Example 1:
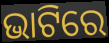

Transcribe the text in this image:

ଭାଟିରେ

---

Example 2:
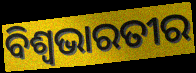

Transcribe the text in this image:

ବିଶ୍ୱଭାରତୀର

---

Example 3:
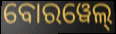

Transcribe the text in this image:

ବୋରୱେଲ୍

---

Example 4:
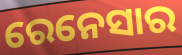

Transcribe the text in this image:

ରେନେସାର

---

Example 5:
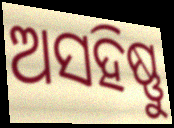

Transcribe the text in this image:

ଅସହିଷ୍ଣୁ